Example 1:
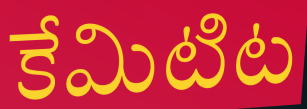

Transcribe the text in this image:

కేమిటిట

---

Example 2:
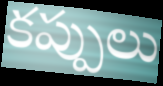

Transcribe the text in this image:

కప్పులు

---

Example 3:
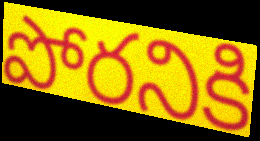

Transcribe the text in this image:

పోరనికి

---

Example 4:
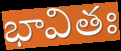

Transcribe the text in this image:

భావితః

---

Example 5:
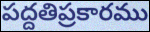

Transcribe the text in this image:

పద్దతిప్రకారము